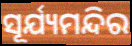
ସୂର୍ଯ୍ୟମନ୍ଦିର